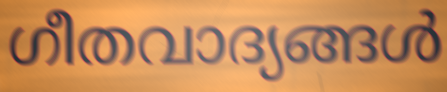
ഗീതവാദ്യങ്ങൾ